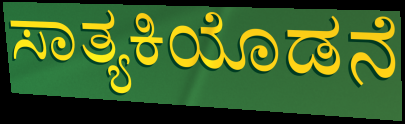
ಸಾತ್ಯಕಿಯೊಡನೆ